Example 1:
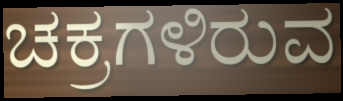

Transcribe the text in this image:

ಚಕ್ರಗಳಿರುವ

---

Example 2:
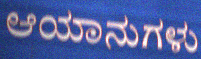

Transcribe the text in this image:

ಆಯಾನುಗಳು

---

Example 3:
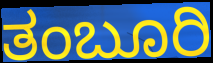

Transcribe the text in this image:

ತಂಬೂರಿ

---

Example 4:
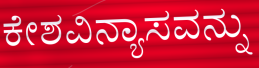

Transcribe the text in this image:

ಕೇಶವಿನ್ಯಾಸವನ್ನು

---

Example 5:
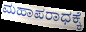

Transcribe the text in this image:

ಮಹಾಪರಾಧಕ್ಕೆ